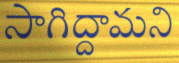
సాగిద్దామని